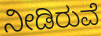
ನೀಡಿರುವೆ